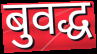
बुवद्ध